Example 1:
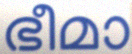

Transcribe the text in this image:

ഭീമാ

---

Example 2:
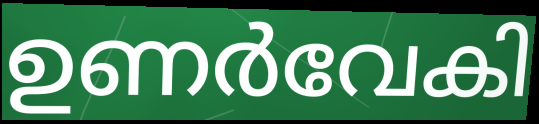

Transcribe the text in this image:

ഉണർവേകി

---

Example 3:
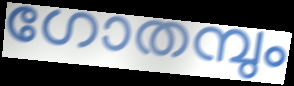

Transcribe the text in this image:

ഗോതമ്പും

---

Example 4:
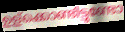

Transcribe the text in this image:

ഉള്ക്കൊണ്ടിട്ടുണ്ടോ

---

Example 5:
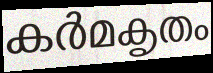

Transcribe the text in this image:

കർമകൃതം